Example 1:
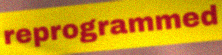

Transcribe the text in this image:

reprogrammed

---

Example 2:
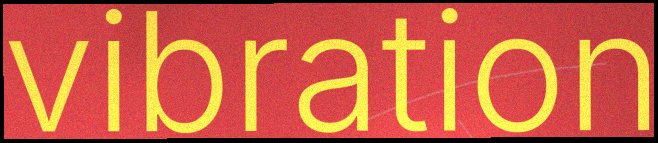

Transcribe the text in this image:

vibration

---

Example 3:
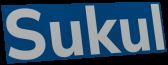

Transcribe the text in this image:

Sukul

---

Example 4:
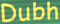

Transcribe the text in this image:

Dubh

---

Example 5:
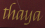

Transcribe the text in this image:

thaya